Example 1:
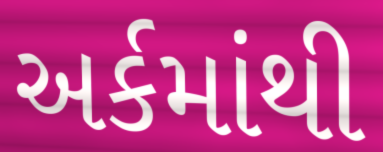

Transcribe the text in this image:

અર્કમાંથી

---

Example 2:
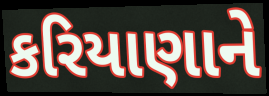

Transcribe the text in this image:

કરિયાણાને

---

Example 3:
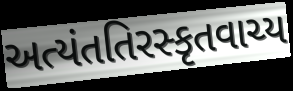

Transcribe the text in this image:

અત્યંતતિરસ્કૃતવાચ્ય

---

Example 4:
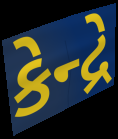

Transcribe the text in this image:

કેન્દ્રે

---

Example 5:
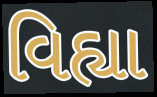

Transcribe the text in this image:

વિહ્યા